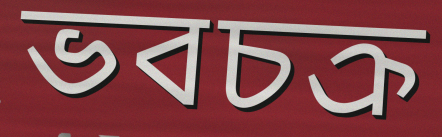
ভবচক্র